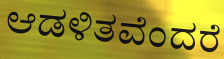
ಆಡಳಿತವೆಂದರೆ